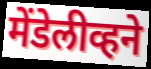
मेंडेलीव्हने